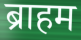
ब्राहम